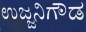
ಉಜ್ಜನಿಗೌಡ